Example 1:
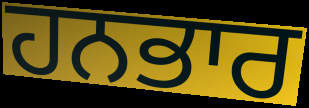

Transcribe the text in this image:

ਹਨਭਾਰ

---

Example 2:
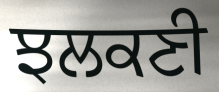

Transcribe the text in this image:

ਝਲਕਣੀ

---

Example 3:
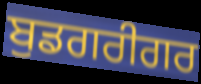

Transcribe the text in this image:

ਬੁਡਗਰੀਗਰ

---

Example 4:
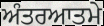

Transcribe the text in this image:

ਅੰਤਰਆਤਮੇ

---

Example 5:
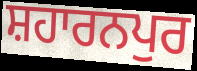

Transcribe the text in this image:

ਸ਼ਹਾਰਨਪੁਰ